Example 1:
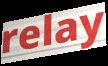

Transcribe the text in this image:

relay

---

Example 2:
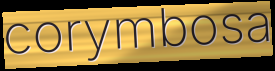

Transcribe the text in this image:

corymbosa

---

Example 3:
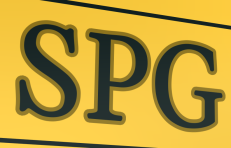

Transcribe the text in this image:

SPG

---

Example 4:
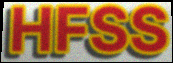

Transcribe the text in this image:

HFSS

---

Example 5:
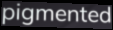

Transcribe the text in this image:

pigmented